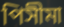
পিসীমা